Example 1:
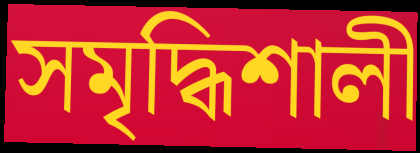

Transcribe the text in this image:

সমৃদ্ধিশালী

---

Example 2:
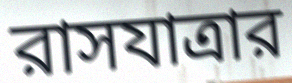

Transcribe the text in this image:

রাসযাত্রার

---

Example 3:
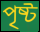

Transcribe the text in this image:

পৃষ্ট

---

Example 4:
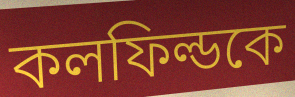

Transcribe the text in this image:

কলফিল্ডকে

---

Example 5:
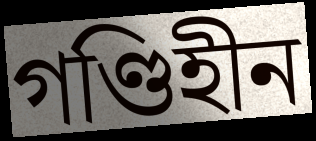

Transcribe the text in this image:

গণ্ডিহীন